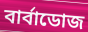
বার্বাডোজ